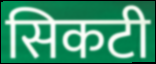
सिकटी